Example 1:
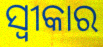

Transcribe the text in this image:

ସ୍ବୀକାର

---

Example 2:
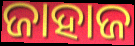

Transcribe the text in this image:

ଜାହାଜ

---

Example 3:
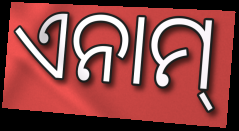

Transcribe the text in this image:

ଏନାମ୍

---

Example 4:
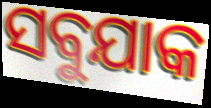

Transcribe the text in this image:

ସବୁଯାକ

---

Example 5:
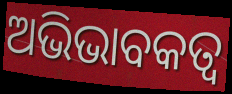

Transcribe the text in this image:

ଅଭିଭାବକତ୍ବ